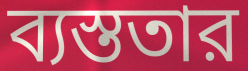
ব্যস্ততার